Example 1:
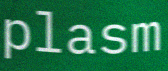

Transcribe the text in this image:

plasm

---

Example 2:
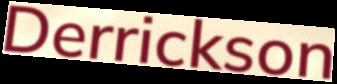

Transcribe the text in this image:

Derrickson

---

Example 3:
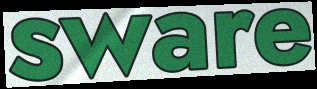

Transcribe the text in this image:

sware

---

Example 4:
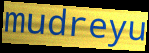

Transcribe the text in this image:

mudreyu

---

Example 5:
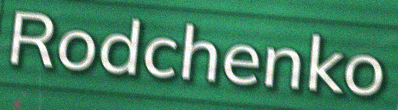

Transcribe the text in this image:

Rodchenko